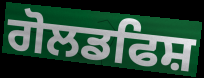
ਗੋਲਡਫਿਸ਼